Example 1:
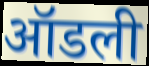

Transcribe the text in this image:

ऑडली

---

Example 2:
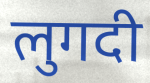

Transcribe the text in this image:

लुगदी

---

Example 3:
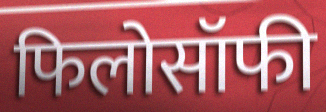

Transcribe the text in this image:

फिलोसॉफी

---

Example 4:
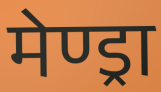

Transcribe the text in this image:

मेण्ड्रा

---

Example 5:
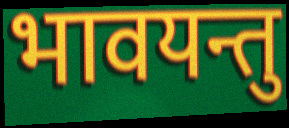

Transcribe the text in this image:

भावयन्तु